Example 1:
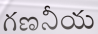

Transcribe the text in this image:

గణనీయ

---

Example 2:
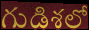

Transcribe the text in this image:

గుడిశలో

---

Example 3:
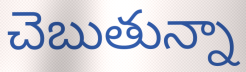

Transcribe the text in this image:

చెబుతున్నా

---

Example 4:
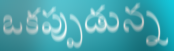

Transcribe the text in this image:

ఒకప్పుడున్న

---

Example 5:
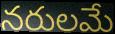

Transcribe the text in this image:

నరులమే